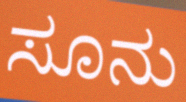
ಸೂನು